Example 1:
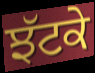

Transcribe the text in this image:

ਝੱਟਕੇ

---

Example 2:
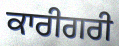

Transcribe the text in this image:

ਕਾਰੀਗਰੀ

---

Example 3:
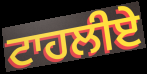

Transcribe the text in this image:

ਟਾਹਲੀਏ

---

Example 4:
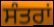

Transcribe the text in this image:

ਸੰਤਰਾਂ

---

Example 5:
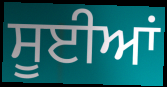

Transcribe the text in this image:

ਸੂਈਆਂ